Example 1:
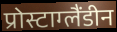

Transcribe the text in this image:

प्रोस्टाग्लैंडीन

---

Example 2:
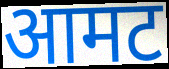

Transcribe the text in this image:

आमट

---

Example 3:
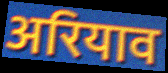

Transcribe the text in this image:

अरियाव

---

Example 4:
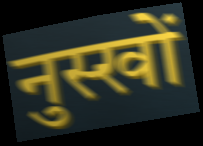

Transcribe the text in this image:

नुस्खों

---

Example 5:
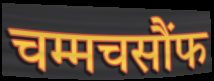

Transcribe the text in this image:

चम्मचसौंफ